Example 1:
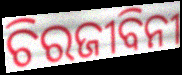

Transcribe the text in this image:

ଚିରଜୀବିନୀ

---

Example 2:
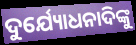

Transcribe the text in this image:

ଦୁର୍ଯ୍ୟୋଧନାଦିଙ୍କୁ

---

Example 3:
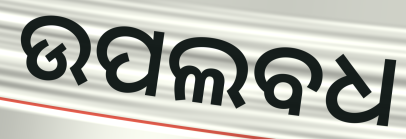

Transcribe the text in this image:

ଉପଲବଧ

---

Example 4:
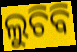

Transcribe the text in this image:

ଲୁଚିବି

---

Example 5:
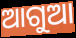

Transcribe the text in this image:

ଆଗୁଆ